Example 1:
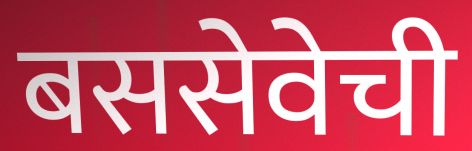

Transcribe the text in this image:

बससेवेची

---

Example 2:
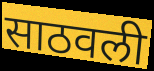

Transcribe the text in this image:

साठवली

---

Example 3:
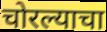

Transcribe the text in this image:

चोरल्याचा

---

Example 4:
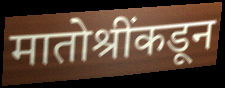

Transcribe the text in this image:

मातोश्रींकडून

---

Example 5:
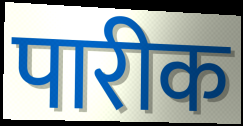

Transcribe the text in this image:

पारीक